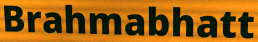
Brahmabhatt